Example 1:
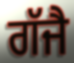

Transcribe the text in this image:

ਗੱਜੈ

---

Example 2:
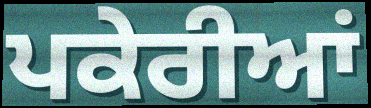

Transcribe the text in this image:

ਪਕੇਰੀਆਂ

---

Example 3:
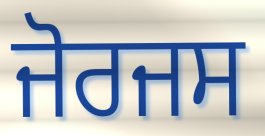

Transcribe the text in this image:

ਜੋਰਜਸ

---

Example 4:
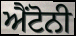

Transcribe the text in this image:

ਐਂਟੋਨੀ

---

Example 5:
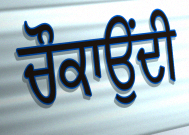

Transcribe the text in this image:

ਚੌਕਾਉਂਦੀ